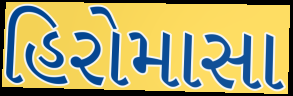
હિરોમાસા